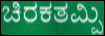
ಚಿರಕತಮ್ಪಿ